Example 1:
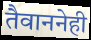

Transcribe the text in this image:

तैवाननेही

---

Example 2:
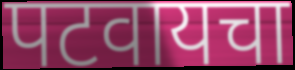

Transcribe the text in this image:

पटवायचा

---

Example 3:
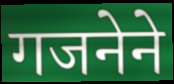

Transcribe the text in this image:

गजनेने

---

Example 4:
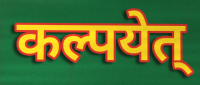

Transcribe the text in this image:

कल्पयेत्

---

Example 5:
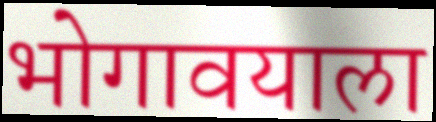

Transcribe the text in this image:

भोगावयाला